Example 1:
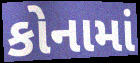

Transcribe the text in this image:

કોનામાં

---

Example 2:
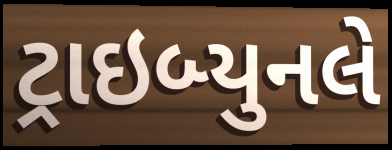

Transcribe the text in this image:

ટ્રાઇબ્યુનલે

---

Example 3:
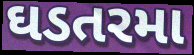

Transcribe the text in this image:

ઘડતરમા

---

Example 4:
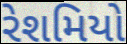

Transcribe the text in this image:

રેશમિયો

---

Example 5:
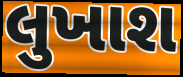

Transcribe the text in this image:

લુખાશ